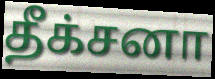
தீக்சனா